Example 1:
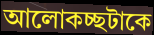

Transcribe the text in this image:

আলোকচ্ছটাকে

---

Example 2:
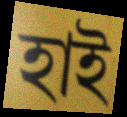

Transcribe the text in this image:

হাই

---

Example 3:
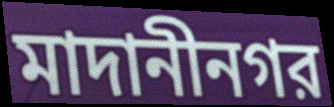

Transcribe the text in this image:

মাদানীনগর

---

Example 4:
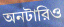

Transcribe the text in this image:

অনটারিও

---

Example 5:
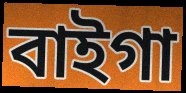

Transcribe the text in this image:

বাইগা